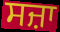
ਸਜ਼ਾ